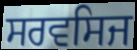
ਸਰਵਸਿਜ